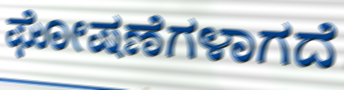
ಘೋಷಣೆಗಳಾಗದೆ